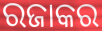
ରଜାକର